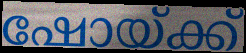
ഷോയ്ക്ക്